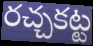
రచ్చకట్ట